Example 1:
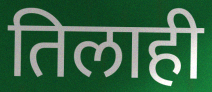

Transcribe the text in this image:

तिलाही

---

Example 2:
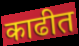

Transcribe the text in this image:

काढीत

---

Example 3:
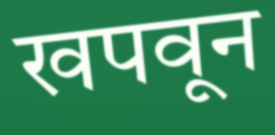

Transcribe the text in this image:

खपवून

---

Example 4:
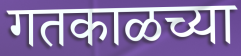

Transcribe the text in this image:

गतकाळच्या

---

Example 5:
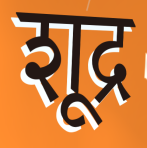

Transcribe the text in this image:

शूद्र